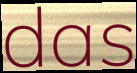
das